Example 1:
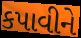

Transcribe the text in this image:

કપાવીને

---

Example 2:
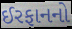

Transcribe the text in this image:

ઈરફાનનો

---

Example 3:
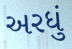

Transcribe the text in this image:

અરધું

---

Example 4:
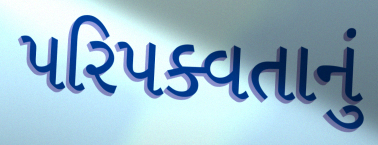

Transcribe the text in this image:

પરિપક્વતાનું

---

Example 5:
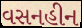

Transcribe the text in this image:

વસનહીન